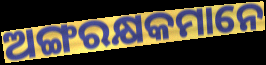
ଅଙ୍ଗରକ୍ଷକମାନେ